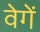
वेगें